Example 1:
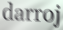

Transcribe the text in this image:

darroj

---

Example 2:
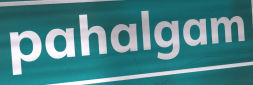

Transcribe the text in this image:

pahalgam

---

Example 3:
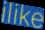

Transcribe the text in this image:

ilike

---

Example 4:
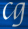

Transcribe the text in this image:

cg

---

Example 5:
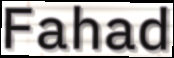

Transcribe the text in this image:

Fahad